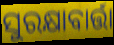
ସୁରକ୍ଷାବାର୍ତ୍ତା